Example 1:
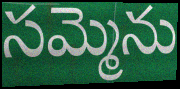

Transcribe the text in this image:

సమ్మెను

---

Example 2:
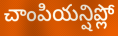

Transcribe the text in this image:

చాంపియన్షిప్లో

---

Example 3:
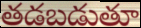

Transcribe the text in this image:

తడబడుతూ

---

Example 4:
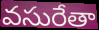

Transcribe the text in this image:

వసురేతా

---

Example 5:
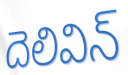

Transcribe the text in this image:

దెలివిన్